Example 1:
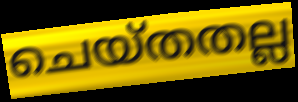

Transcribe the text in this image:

ചെയ്തതല്ല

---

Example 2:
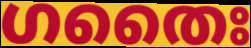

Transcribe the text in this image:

ഗതൈഃ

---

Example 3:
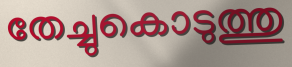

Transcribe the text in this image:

തേച്ചുകൊടുത്തു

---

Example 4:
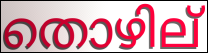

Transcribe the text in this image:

തൊഴില്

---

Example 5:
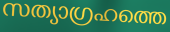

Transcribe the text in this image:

സത്യാഗ്രഹത്തെ